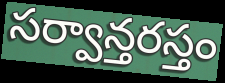
సర్వాన్తరస్తం